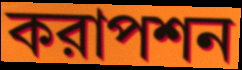
করাপশন